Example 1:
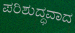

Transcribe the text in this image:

ಪರಿಶುದ್ಧವಾದ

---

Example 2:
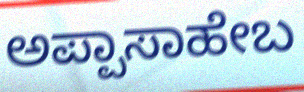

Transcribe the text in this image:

ಅಪ್ಪಾಸಾಹೇಬ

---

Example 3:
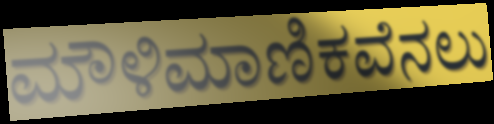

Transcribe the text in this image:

ಮೌಳಿಮಾಣಿಕವೆನಲು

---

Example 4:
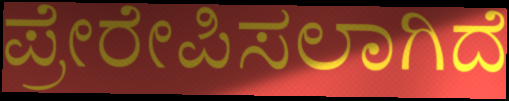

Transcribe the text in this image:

ಪ್ರೇರೇಪಿಸಲಾಗಿದೆ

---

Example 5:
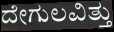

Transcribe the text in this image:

ದೇಗುಲವಿತ್ತು